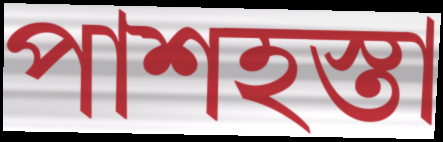
পাশহস্তা